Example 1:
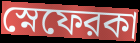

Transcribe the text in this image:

স্নেফেরকা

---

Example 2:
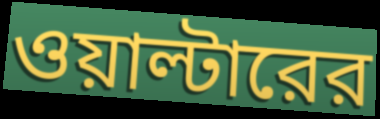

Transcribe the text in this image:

ওয়াল্টারের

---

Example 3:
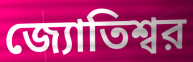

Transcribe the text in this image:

জ্যোতিশ্বর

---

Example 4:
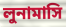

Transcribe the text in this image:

লুনামাসি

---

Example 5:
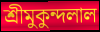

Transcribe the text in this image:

শ্রীমুকুন্দলাল